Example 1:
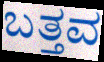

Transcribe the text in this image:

ಬತ್ತವ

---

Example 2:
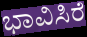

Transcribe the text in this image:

ಭಾವಿಸಿರೆ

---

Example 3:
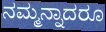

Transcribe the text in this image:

ನಮ್ಮನ್ನಾದರೂ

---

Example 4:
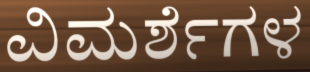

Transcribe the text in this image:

ವಿಮರ್ಶೆಗಳ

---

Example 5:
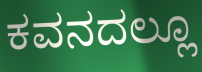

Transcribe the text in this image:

ಕವನದಲ್ಲೂ